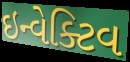
ઇન્વેક્ટિવ